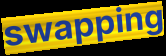
swapping